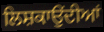
ਲਿਸ਼ਕਾਉਂਦੀਆਂ